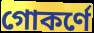
গোকর্ণে